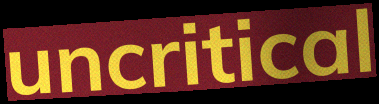
uncritical